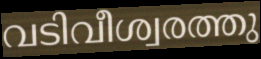
വടിവീശ്വരത്തു